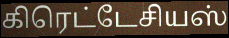
கிரெட்டேசியஸ்